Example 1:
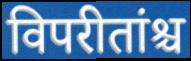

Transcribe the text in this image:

विपरीतांश्च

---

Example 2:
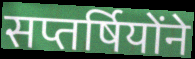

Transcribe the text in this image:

सप्तर्षियोंने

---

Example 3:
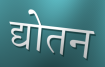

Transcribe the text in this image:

द्योतन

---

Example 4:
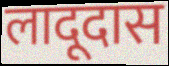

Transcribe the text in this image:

लादूदास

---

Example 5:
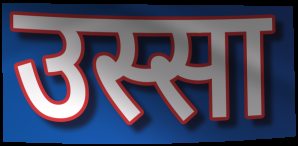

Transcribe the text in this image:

उस्सा